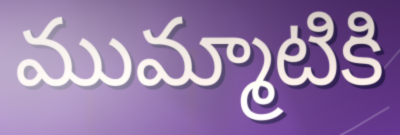
ముమ్మాటికి